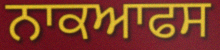
ਨਾਕਆਫਸ